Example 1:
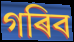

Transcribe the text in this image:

গৰিব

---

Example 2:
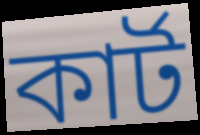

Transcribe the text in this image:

কাৰ্ট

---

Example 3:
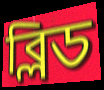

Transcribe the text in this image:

ব্লিড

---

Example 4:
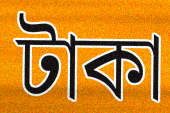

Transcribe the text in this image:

টাকা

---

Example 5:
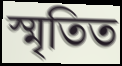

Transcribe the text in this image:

স্মৃতিত